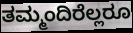
ತಮ್ಮಂದಿರೆಲ್ಲರೂ